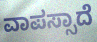
ವಾಪಸ್ಸಾದೆ